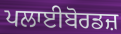
ਪਲਾਈਬੋਰਡਜ਼